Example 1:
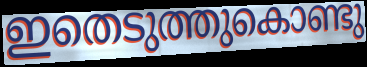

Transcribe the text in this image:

ഇതെടുത്തുകൊണ്ടു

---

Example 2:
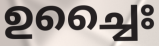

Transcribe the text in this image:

ഉച്ചൈഃ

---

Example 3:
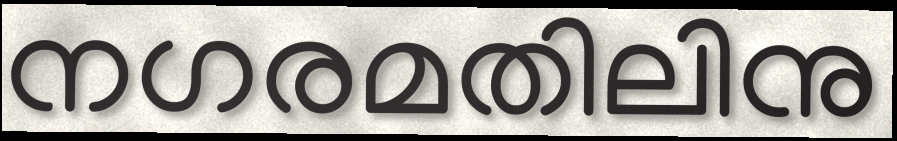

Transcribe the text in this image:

നഗരമതിലിനു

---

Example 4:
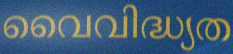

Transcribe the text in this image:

വൈവിദ്ധ്യത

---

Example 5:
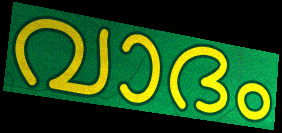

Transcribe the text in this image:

വാദം